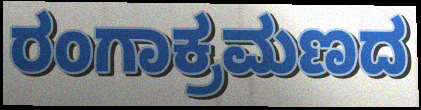
ರಂಗಾಕ್ರಮಣದ